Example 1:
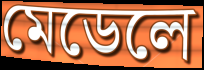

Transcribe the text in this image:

মেডেলে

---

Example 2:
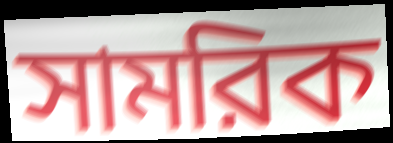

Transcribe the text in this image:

সামরিক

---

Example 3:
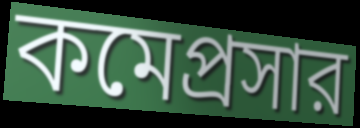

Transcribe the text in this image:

কমেপ্রসার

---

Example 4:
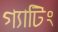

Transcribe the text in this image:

গ্যাটিং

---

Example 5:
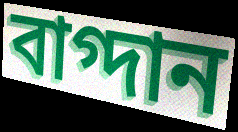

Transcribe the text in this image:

বাগ্দান